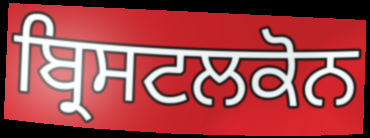
ਬ੍ਰਿਸਟਲਕੋਨ